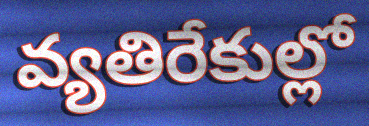
వ్యతిరేకుల్లో